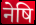
नेषि